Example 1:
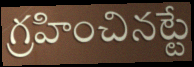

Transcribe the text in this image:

గ్రహించినట్టే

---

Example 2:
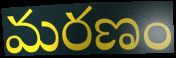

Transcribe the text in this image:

మరణం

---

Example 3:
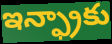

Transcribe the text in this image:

ఇన్ఫ్రాకు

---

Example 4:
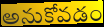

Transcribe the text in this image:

అనుకోవడం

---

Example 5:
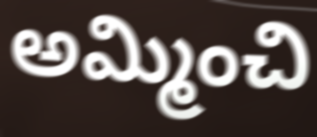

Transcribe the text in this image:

అమ్మించి